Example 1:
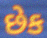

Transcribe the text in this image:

છેક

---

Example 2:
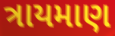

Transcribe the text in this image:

ત્રાયમાણ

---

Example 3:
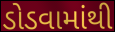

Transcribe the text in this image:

ડોડવામાંથી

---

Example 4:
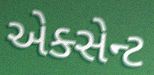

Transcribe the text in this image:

એક્સેન્ટ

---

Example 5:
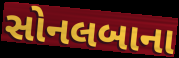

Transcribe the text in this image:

સોનલબાના